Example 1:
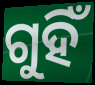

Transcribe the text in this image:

ଗୁହିଁ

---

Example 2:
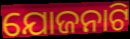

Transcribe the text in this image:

ଯୋଜନାଟି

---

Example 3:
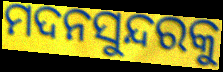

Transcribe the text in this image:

ମଦନସୁନ୍ଦରକୁ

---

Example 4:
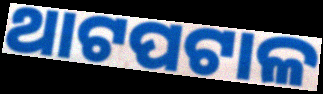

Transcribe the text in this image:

ଥାଟପଟାଳ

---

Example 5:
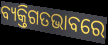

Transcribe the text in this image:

ବ୍ୟକ୍ତିଗତଭାବରେ